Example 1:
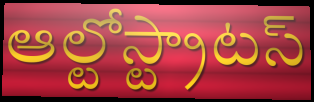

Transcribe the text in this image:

ఆల్టోస్ట్రాటస్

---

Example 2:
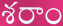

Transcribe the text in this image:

శరాం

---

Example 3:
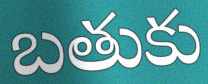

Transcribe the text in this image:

బతుకు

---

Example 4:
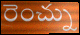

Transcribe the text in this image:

రెంచ్ను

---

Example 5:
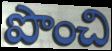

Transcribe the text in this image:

పొంచి